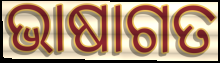
ଭାଷାଗତ